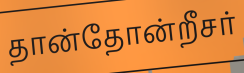
தான்தோன்றீசர்